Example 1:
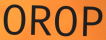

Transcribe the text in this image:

OROP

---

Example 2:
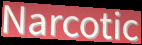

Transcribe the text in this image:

Narcotic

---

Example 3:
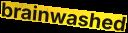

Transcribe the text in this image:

brainwashed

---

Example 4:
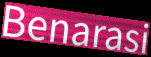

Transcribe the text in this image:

Benarasi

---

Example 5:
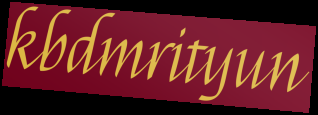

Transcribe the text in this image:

kbdmrityun